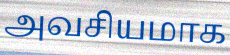
அவசியமாக